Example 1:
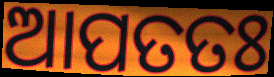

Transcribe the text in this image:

ଆପତତଃ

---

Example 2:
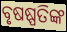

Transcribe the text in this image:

ବୃଷଷ୍ପତିଙ୍କ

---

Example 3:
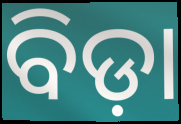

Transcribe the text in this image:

ବିଡ଼ା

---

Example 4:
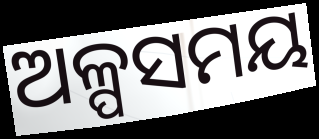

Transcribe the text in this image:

ଅଳ୍ପସମୟ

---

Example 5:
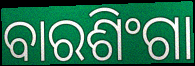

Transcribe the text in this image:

ବାରଶିଂଗା